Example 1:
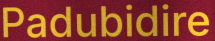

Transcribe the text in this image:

Padubidire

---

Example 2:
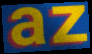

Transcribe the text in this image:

az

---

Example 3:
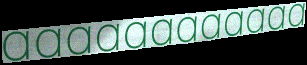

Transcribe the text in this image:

aaaaaaaaaaaa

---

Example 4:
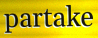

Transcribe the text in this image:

partake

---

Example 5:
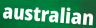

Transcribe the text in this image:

australian